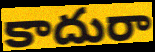
కాదురా